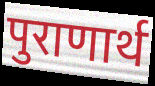
पुराणार्थ